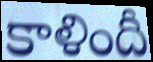
కాళిందీ